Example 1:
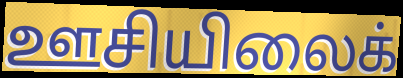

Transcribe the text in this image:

ஊசியிலைக்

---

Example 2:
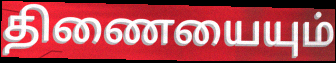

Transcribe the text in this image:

திணையையும்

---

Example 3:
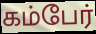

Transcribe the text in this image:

கம்பேர்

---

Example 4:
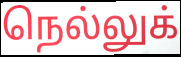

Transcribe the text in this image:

நெல்லுக்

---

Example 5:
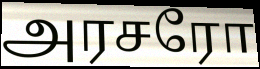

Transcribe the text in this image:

அரசரோ